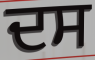
ਦਸ